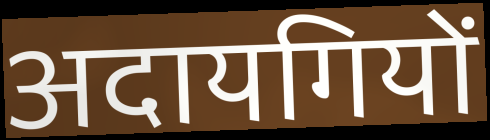
अदायगियों